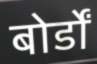
बोर्डों